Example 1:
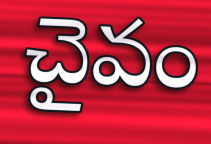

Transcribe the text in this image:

చైవం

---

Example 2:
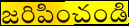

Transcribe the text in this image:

జరిపించండి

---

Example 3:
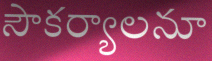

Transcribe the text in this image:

సౌకర్యాలనూ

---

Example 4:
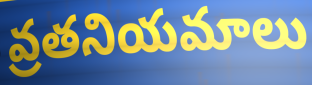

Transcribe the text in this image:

వ్రతనియమాలు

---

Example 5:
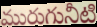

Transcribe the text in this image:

మురుగునీటి